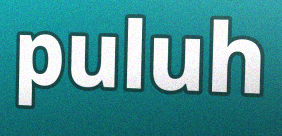
puluh